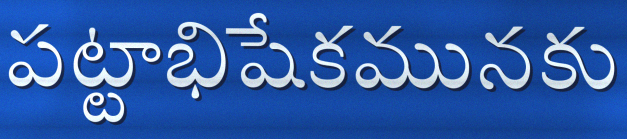
పట్టాభిషేకమునకు